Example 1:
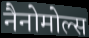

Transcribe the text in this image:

नैनोमोल्स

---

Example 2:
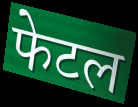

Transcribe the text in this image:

फेटल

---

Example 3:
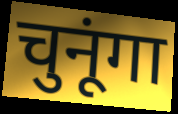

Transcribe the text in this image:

चुनूंगा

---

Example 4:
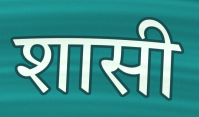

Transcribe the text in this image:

शासी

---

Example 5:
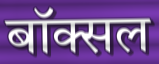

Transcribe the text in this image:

बॉक्सल